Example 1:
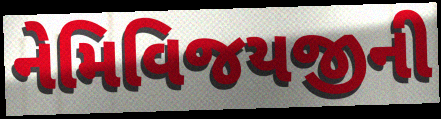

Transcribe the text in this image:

નેમિવિજયજીની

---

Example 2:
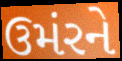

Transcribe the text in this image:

ઉમંરને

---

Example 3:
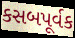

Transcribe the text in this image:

કસબપૂર્વક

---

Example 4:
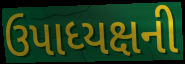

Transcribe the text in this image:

ઉપાધ્યક્ષની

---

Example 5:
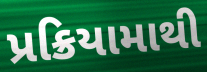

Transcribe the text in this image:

પ્રક્રિયામાથી